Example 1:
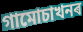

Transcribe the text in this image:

গামোচাখনৰ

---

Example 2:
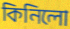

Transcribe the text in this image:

কিনিলো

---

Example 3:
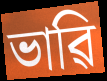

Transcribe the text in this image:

ভাৱি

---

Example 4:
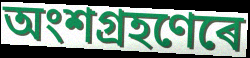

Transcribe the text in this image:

অংশগ্ৰহণেৰে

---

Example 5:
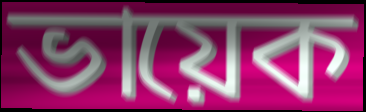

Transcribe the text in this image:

ভায়েক